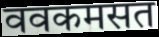
ववकमसत